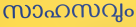
സാഹസവും